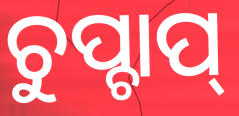
ଚୁପ୍ଚାପ୍